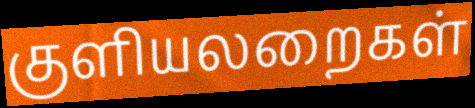
குளியலறைகள்